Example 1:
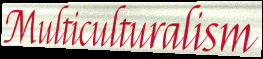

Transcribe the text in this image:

Multiculturalism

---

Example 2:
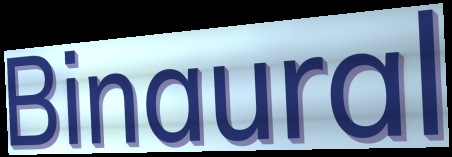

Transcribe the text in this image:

Binaural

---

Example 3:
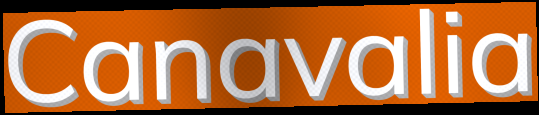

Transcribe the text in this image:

Canavalia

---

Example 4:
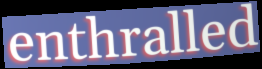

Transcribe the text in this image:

enthralled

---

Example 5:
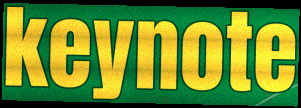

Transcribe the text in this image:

keynote